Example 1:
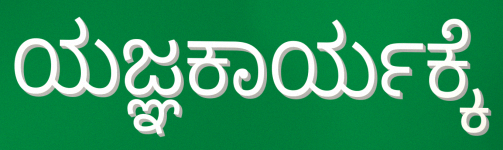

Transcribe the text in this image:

ಯಜ್ಞಕಾರ್ಯಕ್ಕೆ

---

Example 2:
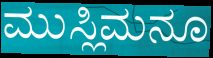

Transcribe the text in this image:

ಮುಸ್ಲಿಮನೂ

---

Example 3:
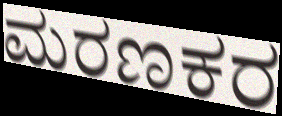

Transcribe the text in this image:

ಮರಣಕರ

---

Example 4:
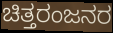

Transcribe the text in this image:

ಚಿತ್ತರಂಜನರ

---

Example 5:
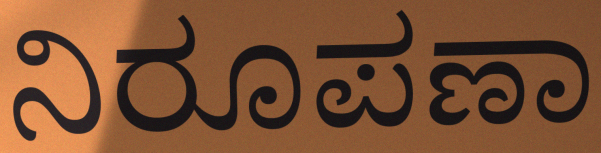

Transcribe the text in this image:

ನಿರೂಪಣಾ